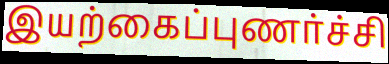
இயற்கைப்புணர்ச்சி